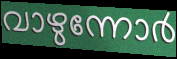
വാഴുന്നോർ